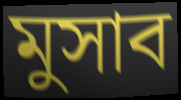
মুসাব